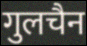
गुलचैन